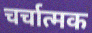
चर्चात्मक